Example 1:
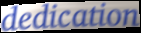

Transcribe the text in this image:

dedication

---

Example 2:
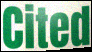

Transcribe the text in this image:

Cited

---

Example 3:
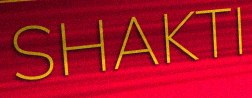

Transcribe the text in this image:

SHAKTI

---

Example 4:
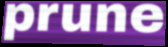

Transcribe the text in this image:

prune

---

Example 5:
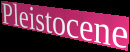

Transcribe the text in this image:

Pleistocene